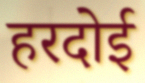
हरदोई